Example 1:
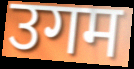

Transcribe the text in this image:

उगम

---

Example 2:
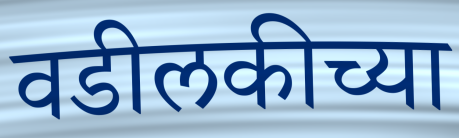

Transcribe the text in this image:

वडीलकीच्या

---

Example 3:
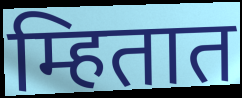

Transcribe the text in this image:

म्हितात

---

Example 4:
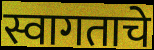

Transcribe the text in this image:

स्वागताचे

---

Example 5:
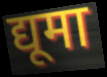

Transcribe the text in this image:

द्यूमा